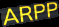
ARPP